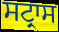
ਸਟ੍ਰਾਸ